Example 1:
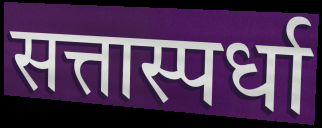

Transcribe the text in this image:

सत्तास्पर्धा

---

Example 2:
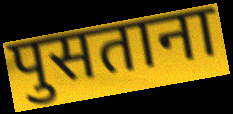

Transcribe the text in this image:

पुसताना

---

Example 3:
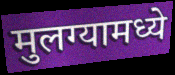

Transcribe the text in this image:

मुलग्यामध्ये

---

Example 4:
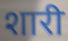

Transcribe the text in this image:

शारी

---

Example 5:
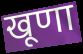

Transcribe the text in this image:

खूणा